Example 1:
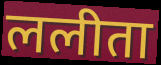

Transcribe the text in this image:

ललीता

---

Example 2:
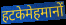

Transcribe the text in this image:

हटकेमेहमानों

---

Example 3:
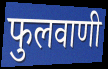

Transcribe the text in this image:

फुलवाणी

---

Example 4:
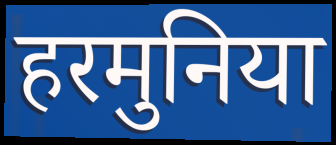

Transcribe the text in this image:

हरमुनिया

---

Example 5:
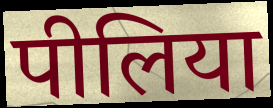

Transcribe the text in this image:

पीलिया